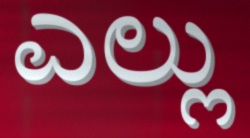
ಎಲ್ಲು